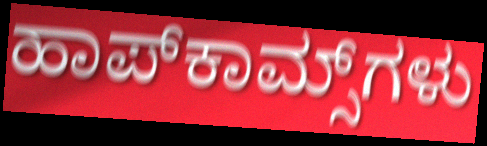
ಹಾಪ್‌ಕಾಮ್ಸ್‌ಗಳು